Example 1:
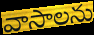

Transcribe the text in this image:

వాసాలను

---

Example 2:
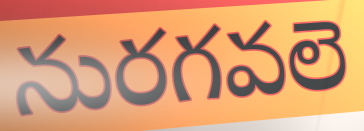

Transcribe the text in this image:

నురగవలె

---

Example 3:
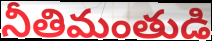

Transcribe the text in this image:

నీతిమంతుడి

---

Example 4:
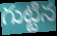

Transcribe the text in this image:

గుట్టిన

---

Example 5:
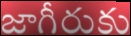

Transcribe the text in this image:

జాగీరుకు